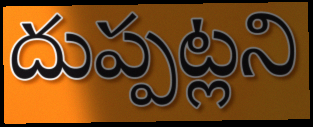
దుప్పట్లని